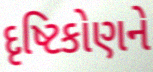
દૃષ્ટિકોણને